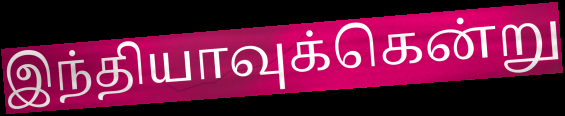
இந்தியாவுக்கென்று